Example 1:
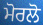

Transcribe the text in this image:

ਮੋਰਲੋ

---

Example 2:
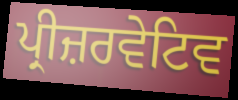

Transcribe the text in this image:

ਪ੍ਰੀਜ਼ਰਵੇਟਿਵ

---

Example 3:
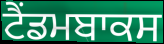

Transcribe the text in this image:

ਟੈਂਡਮਬਾਕਸ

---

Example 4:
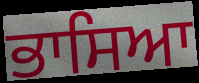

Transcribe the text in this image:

ਭਾਸਿਆ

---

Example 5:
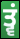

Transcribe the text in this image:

ਤ੍ਵਂ